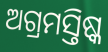
ଅଗ୍ରମସ୍ତିଷ୍କ